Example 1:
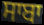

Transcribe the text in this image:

ਸਾਬਾ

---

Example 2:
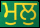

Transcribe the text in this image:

ਮੁਲੁ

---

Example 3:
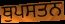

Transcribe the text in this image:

ਥੁਪਸਤਨ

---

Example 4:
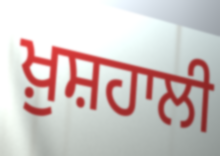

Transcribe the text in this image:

ਖ਼ੁਸ਼ਹਾਲੀ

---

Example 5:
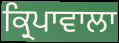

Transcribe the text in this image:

ਕ੍ਰਿਪਾਵਾਲਾ